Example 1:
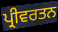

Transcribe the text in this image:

ਪ੍ਰੀਵਰਤਨ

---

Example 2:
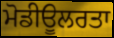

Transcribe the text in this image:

ਮੋਡੀਊਲਰਤਾ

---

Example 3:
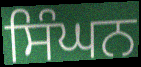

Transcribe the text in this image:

ਸਿੰਘਨ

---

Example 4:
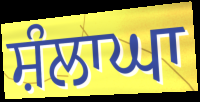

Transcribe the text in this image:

ਸ਼ੰਲਾਘਾ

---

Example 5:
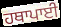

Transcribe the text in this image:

ਹਥਾਪਾਈ